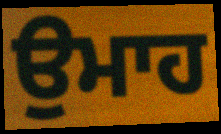
ਉਮਾਹ